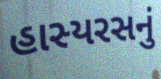
હાસ્યરસનું